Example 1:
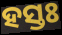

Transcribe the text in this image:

ହସ୍ତଃ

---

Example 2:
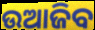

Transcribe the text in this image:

ଉଆଜିବ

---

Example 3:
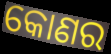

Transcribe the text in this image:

କୋଣର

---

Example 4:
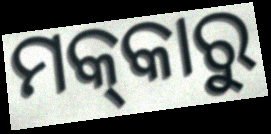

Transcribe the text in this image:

ମକ୍‌କାରୁ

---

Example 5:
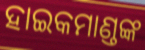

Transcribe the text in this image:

ହାଇକମାଣ୍ଡଙ୍କ